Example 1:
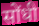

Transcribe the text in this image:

सोंधी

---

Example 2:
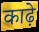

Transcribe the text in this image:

काढ़े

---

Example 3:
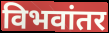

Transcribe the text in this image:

विभवांतर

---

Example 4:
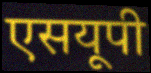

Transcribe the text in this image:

एसयूपी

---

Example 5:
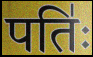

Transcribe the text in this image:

पतिः॑